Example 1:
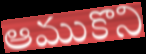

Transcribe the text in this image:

ఆముకొని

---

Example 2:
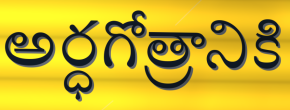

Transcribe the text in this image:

అర్ధగోత్రానికి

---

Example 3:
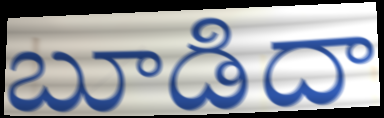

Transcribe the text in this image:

బూడిదా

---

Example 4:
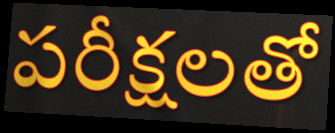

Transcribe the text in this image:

పరీక్షలతో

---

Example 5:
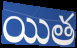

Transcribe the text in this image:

యిత